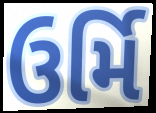
ઉર્મિ